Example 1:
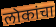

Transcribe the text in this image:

लोकांचा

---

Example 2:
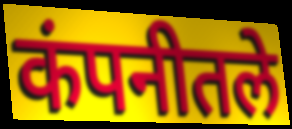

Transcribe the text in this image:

कंपनीतले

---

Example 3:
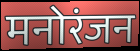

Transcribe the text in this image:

मनोरंजन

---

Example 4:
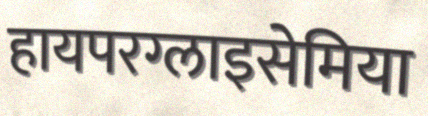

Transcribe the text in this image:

हायपरग्लाइसेमिया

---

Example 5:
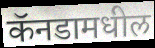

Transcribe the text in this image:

कॅनडामधील